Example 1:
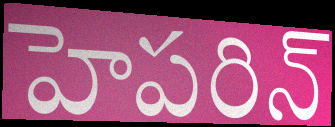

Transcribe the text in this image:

హెపరిన్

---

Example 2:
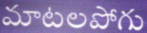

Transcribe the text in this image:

మాటలపోగు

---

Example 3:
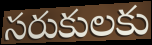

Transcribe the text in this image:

సరుకులకు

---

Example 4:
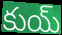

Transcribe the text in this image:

కుయ్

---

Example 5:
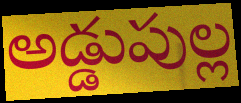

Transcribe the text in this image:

అడ్డుపుల్ల